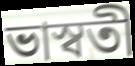
ভাস্বতী